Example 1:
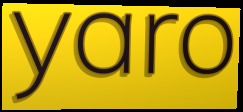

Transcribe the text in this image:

yaro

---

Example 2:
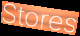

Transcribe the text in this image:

Stores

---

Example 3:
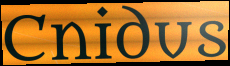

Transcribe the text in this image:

Cnidus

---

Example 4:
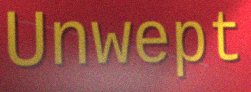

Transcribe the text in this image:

Unwept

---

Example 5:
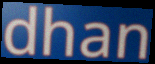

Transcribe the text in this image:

dhan